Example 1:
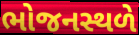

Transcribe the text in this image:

ભોજનસ્થળે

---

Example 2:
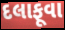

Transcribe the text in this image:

દલાફૂવા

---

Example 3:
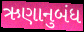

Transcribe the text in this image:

ઋણાનુબંધ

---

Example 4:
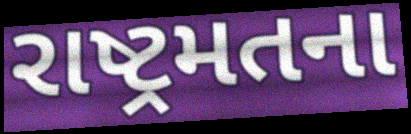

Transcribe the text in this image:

રાષ્ટ્રમતના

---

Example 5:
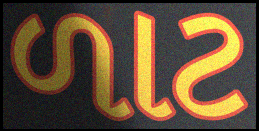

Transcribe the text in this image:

ળાટ